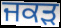
ਜਕੜ